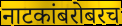
नाटकांबरोबरच